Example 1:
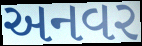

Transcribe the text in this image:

અનવર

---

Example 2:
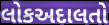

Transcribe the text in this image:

લોકઅદાલતો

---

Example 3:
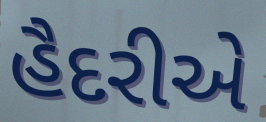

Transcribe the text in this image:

હૈદરીએ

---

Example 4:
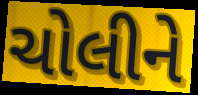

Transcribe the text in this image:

ચોલીને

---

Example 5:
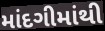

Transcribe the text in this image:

માંદગીમાંથી